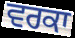
ਵਰਕਾ